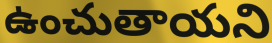
ఉంచుతాయని